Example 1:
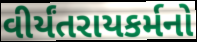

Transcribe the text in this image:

વીર્યંતરાયકર્મનો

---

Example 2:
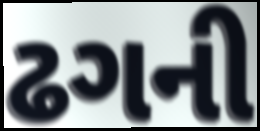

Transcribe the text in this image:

ઢગની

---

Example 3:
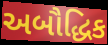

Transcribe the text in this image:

અબૌદ્ધિક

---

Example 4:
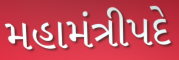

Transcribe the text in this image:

મહામંત્રીપદે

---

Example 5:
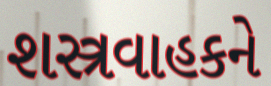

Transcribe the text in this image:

શસ્ત્રવાહકને